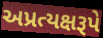
અપ્રત્યક્ષરૂપે